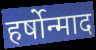
हर्षोन्माद